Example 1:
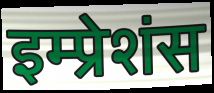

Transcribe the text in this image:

इम्प्रेशंस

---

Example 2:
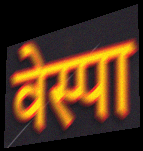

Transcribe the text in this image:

वेस्‍पा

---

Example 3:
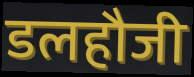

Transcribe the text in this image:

डलहौजी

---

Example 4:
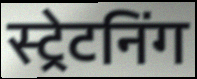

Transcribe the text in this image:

स्ट्रेटनिंग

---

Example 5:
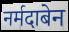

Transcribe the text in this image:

नर्मदाबेन